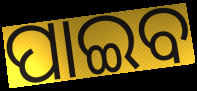
ପାଇବ